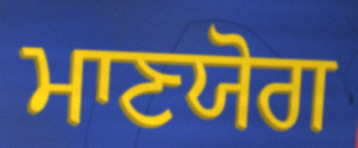
ਮਾਣਯੋਗ